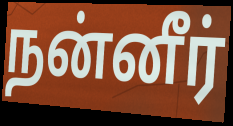
நன்னீர்